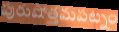
పురుషోత్తమపట్నం